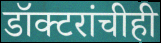
डॉक्टरांचीही